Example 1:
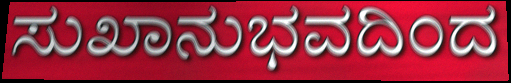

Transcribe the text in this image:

ಸುಖಾನುಭವದಿಂದ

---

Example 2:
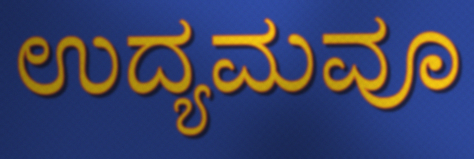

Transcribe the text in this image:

ಉದ್ಯಮವೂ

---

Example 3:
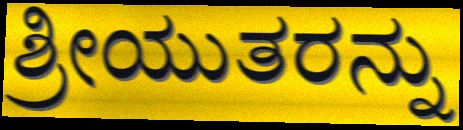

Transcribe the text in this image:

ಶ್ರೀಯುತರನ್ನು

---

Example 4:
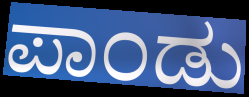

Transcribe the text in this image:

ಪಾಂಡು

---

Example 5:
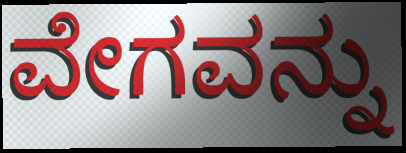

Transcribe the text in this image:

ವೇಗವನ್ನು